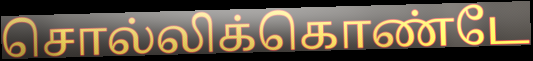
சொல்லிக்கொண்டே